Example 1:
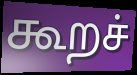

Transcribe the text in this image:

கூறச்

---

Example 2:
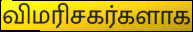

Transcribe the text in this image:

விமரிசகர்களாக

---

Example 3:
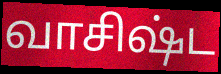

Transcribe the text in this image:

வாசிஷ்ட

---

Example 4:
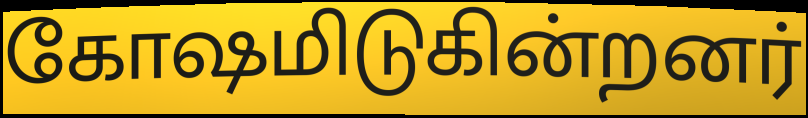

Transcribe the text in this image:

கோஷமிடுகின்றனர்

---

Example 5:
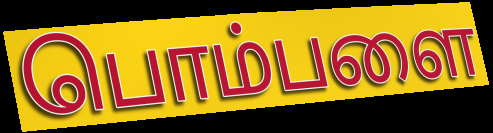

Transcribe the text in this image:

பொம்பளை